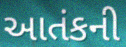
આતંકની